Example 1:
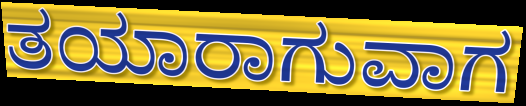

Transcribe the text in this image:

ತಯಾರಾಗುವಾಗ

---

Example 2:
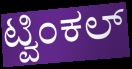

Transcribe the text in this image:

ಟ್ವಿಂಕಲ್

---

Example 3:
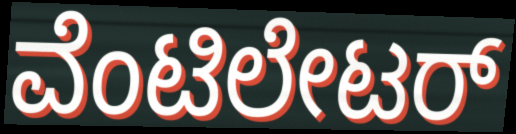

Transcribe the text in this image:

ವೆಂಟಿಲೇಟರ್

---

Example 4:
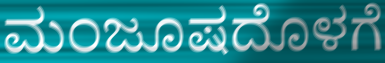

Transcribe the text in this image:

ಮಂಜೂಷದೊಳಗೆ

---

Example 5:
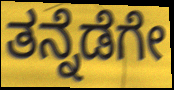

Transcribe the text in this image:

ತನ್ನೆಡೆಗೇ